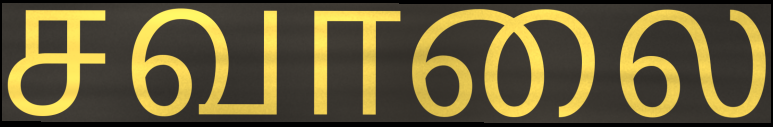
சவாலை